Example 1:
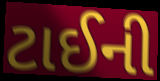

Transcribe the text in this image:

ટાઈની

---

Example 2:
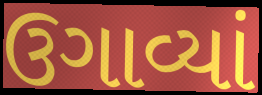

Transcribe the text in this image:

ઉગાવ્યાં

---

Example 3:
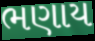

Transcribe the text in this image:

ભણાય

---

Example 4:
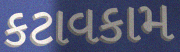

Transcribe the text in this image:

કટાવકામ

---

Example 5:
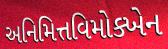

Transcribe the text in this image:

અનિમિત્તવિમોક્ખેન